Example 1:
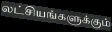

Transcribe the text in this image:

லட்சியங்களுக்கும்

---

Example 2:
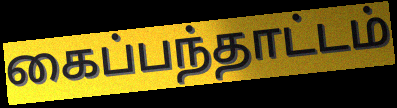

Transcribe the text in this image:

கைப்பந்தாட்டம்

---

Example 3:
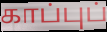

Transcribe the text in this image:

காப்புப்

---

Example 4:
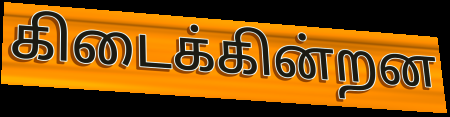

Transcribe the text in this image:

கிடைக்கின்றன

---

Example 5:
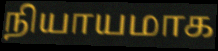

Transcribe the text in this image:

நியாயமாக